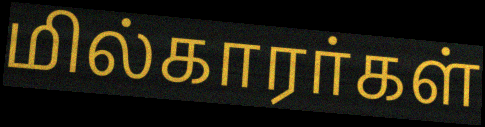
மில்காரர்கள்